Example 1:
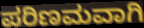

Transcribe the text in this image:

ಪರಿಣಮವಾಗಿ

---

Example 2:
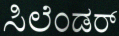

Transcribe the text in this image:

ಸಿಲೆಂಡರ್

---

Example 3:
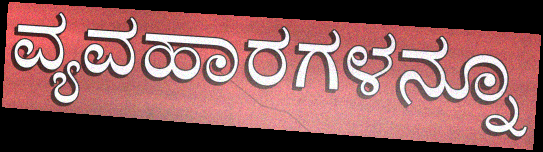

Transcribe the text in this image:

ವ್ಯವಹಾರಗಳನ್ನೂ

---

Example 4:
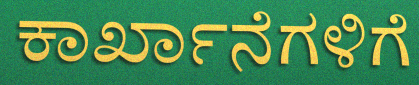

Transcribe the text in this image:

ಕಾರ್ಖಾನೆಗಳಿಗೆ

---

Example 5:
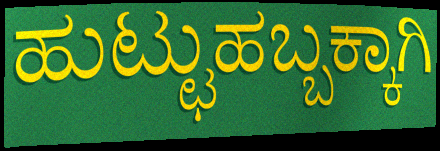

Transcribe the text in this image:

ಹುಟ್ಟುಹಬ್ಬಕ್ಕಾಗಿ